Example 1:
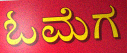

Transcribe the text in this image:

ಓಮೆಗ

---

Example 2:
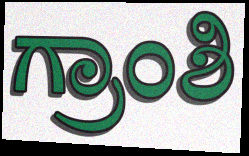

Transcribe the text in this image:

ಗ್ರಾಂಶಿ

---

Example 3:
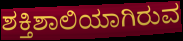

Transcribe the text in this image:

ಶಕ್ತಿಶಾಲಿಯಾಗಿರುವ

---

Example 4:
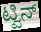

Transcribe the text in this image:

ಟ್ವಿನ್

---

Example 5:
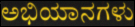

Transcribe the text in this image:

ಅಭಿಯಾನಗಳು